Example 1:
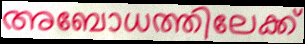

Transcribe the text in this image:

അബോധത്തിലേക്ക്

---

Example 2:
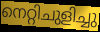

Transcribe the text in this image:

നെറ്റിചുളിച്ചു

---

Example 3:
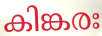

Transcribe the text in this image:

കിങ്കരഃ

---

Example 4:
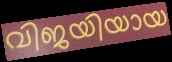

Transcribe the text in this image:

വിജയിയായ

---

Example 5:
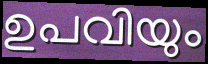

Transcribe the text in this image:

ഉപവിയും